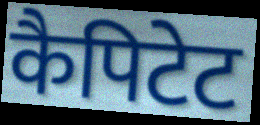
कैपिटेट